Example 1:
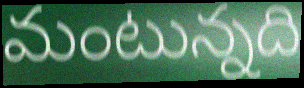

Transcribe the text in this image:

మంటున్నది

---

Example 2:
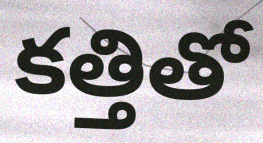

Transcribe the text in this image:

కత్తితో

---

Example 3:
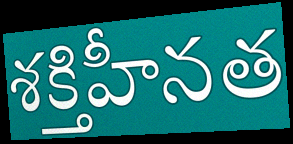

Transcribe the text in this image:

శక్తిహీనత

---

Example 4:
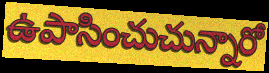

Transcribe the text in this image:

ఉపాసించుచున్నారో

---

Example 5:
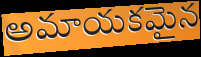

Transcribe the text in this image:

అమాయకమైన